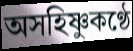
অসহিষ্ণুকণ্ঠে